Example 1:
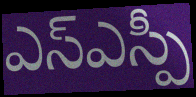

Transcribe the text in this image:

ఎస్ఎస్పీ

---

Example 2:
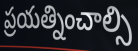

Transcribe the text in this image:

ప్రయత్నించాల్సి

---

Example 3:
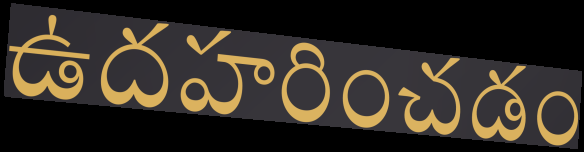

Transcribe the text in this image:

ఉదహరించడం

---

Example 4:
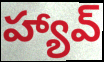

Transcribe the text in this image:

హ్యావ్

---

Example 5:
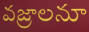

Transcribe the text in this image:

వజ్రాలనూ